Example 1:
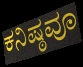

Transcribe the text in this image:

ಕನಿಷ್ಠವೂ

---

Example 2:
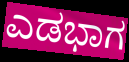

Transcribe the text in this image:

ಎಡಭಾಗ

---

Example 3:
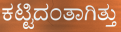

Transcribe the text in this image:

ಕಟ್ಟಿದಂತಾಗಿತ್ತು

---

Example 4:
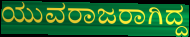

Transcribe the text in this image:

ಯುವರಾಜರಾಗಿದ್ದ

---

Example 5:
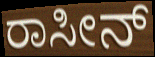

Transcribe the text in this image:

ರಾಸೀನ್